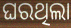
ଘରଥିଲା